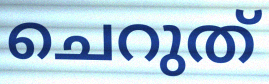
ചെറുത്